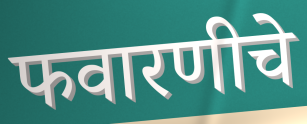
फवारणीचे